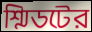
শ্মিডটের